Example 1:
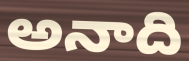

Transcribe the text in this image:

అనాది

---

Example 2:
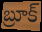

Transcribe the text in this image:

బ్రూక్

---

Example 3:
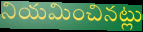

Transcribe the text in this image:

నియమించినట్లు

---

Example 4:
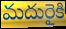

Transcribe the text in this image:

మదురైకి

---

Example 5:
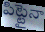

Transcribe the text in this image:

పిట్టైనా